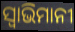
ସ୍ବାଭିମାନୀ